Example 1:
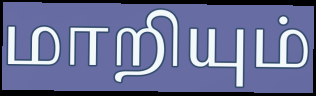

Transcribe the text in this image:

மாறியும்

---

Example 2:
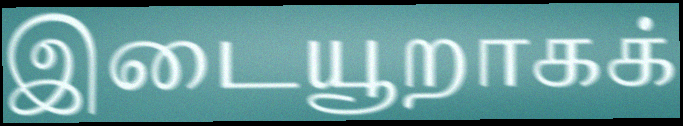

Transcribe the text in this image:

இடையூறாகக்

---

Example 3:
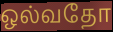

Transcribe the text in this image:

ஒல்வதோ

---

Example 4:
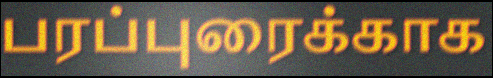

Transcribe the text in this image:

பரப்புரைக்காக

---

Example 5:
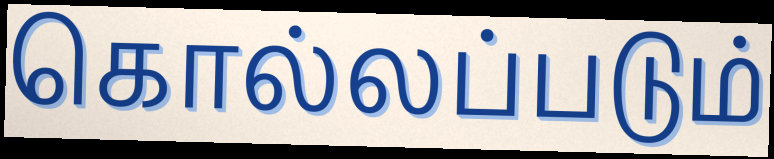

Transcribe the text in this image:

கொல்லப்படும்